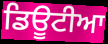
ਡਿਊਟੀਆ